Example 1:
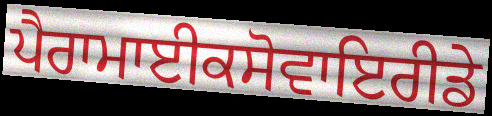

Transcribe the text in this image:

ਪੈਰਾਮਾਈਕਸੋਵਾਇਰੀਡੇ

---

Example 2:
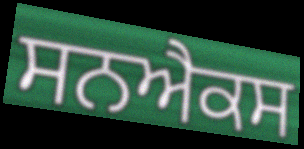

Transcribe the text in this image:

ਸਨਐਕਸ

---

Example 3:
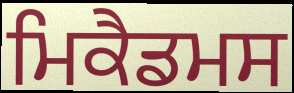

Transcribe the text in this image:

ਮਿਕੈਡਮਸ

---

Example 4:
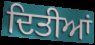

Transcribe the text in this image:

ਦਿਤੀਆਂ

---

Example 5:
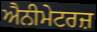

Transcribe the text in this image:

ਐਨੀਮੇਟਰਜ਼